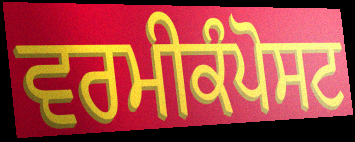
ਵਰਮੀਕੰਪੋਸਟ